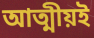
আত্মীয়ই